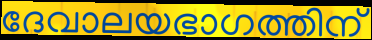
ദേവാലയഭാഗത്തിന്